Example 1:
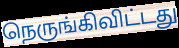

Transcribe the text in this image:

நெருங்கிவிட்டது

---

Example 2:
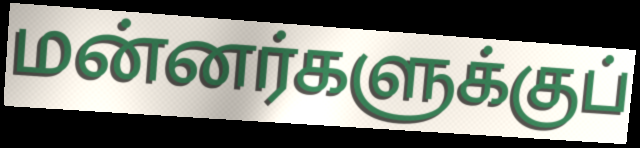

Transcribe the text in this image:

மன்னர்களுக்குப்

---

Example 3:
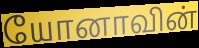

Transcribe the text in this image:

யோனாவின்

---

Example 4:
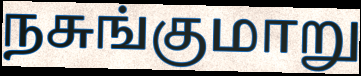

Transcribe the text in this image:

நசுங்குமாறு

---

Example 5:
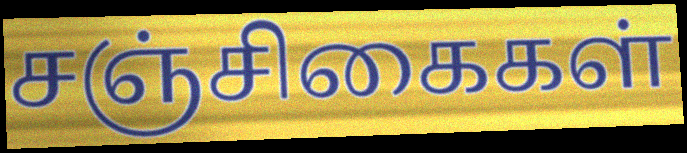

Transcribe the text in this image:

சஞ்சிகைகள்